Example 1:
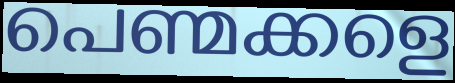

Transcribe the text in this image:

പെണ്മക്കളെ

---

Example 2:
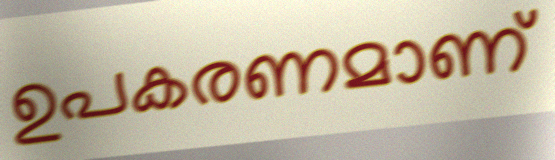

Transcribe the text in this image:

ഉപകരണമാണ്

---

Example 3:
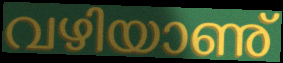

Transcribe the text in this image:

വഴിയാണു്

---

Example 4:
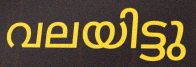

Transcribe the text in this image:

വലയിട്ടു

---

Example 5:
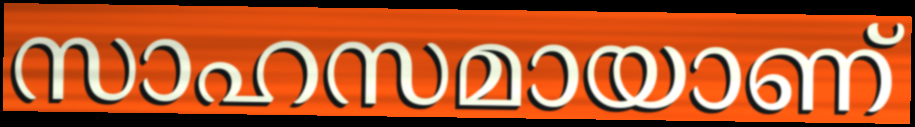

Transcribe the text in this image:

സാഹസമായാണ്